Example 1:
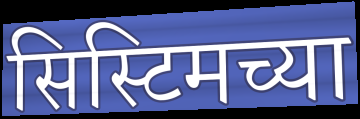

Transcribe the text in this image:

सिस्टिमच्या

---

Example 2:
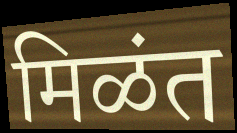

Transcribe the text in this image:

मिळंत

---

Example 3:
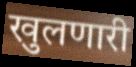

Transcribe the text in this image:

खुलणारी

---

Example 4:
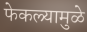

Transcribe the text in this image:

फेकल्यामुळे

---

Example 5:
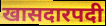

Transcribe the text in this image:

खासदारपदी